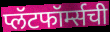
प्लॅटफॉर्म्सची